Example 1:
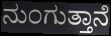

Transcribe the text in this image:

ನುಂಗುತ್ತಾನೆ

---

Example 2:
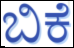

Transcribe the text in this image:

ಬಿಕೆ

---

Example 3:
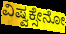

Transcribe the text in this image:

ವಿಷ್ವಕ್ಸೇನೋ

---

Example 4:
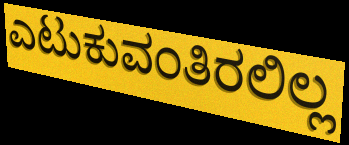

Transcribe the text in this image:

ಎಟುಕುವಂತಿರಲಿಲ್ಲ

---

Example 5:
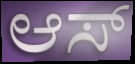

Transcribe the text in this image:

ಆಸ್